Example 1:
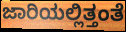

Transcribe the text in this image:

ಜಾರಿಯಲ್ಲಿತ್ತಂತೆ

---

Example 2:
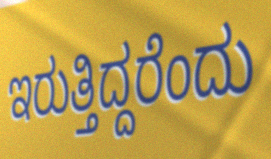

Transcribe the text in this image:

ಇರುತ್ತಿದ್ದರೆಂದು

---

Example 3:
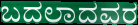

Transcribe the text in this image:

ಬದಲಾದವರ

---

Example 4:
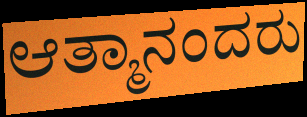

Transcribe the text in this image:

ಆತ್ಮಾನಂದರು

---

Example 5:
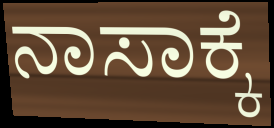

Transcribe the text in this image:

ನಾಸಾಕ್ಕೆ